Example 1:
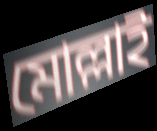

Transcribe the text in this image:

মোল্লাই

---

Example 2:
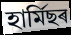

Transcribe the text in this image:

হাৰ্মিছৰ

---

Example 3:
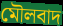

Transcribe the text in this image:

মৌলবাদ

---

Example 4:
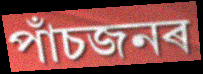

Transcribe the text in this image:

পাঁচজনৰ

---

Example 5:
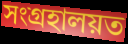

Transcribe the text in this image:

সংগ্ৰহালয়ত